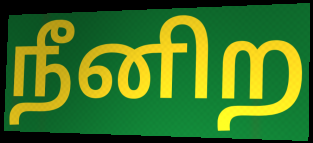
நீனிற